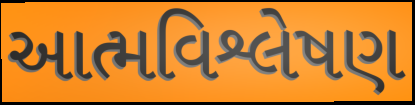
આત્મવિશ્લેષણ